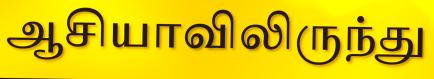
ஆசியாவிலிருந்து